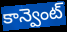
కాన్వెంట్